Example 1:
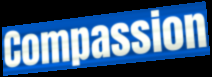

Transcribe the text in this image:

Compassion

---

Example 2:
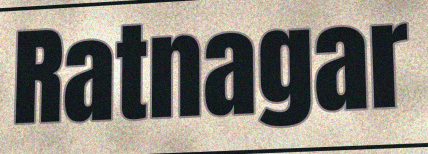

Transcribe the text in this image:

Ratnagar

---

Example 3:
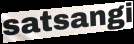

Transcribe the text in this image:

satsangi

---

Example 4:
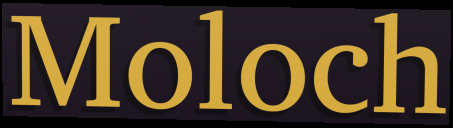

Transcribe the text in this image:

Moloch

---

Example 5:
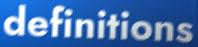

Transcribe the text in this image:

definitions